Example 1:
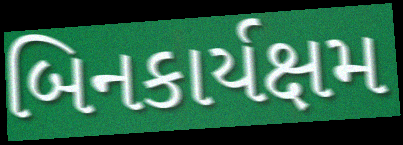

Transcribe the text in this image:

બિનકાર્યક્ષમ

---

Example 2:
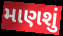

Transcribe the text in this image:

માણશું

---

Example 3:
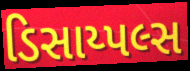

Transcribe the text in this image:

ડિસાય્પલ્સ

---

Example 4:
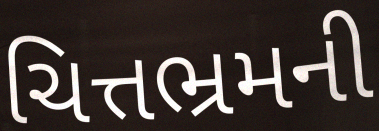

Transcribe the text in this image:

ચિત્તભ્રમની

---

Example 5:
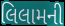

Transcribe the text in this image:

લિલામની